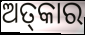
ଅତ୍‌କାର